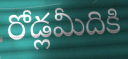
రోడ్లమీదికి